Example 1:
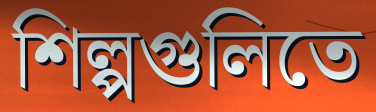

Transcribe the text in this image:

শিল্পগুলিতে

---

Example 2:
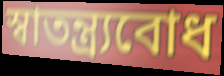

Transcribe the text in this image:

স্বাতন্ত্র্যবোধ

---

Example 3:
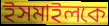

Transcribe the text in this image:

ইসমাইলকে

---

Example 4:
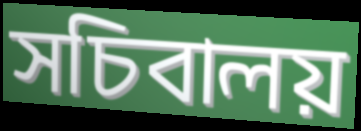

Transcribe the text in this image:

সচিবালয়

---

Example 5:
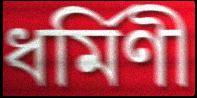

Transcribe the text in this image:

ধর্মিণী